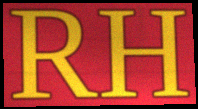
RH